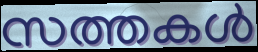
സത്തകൾ